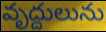
వృద్దులును